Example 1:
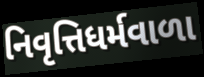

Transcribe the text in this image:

નિવૃત્તિધર્મવાળા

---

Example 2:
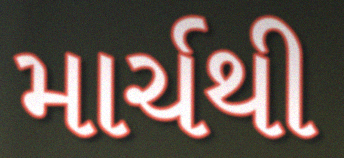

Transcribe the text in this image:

માર્ચથી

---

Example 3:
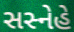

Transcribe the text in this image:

સસ્નેહે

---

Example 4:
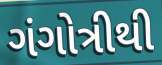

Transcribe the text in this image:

ગંગોત્રીથી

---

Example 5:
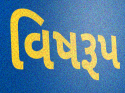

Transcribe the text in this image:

વિષરૂપ